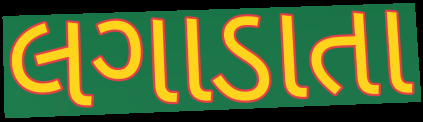
લગાડાતા